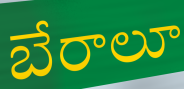
బేరాలూ